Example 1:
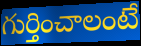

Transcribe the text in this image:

గుర్తించాలంటే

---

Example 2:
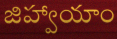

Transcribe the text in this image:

జిహ్వాయాం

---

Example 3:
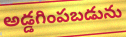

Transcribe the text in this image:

అడ్డగింపబడును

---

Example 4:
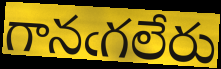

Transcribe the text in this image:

గానఁగలేరు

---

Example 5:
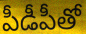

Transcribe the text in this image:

పీడీపీతో